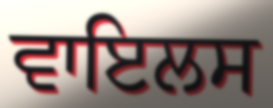
ਵਾਇਲਸ